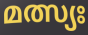
മത്സ്യഃ